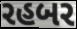
રહબર